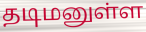
தடிமனுள்ள